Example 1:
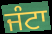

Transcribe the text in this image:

ਜੰਟਾ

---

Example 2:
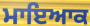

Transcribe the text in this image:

ਮਾਇਆਕ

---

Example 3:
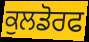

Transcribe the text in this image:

ਕੁਲਡੋਰਫ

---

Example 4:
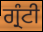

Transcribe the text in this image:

ਗ੍ਰੰਟੀ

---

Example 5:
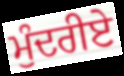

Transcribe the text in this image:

ਮੁੰਦਰੀਏ